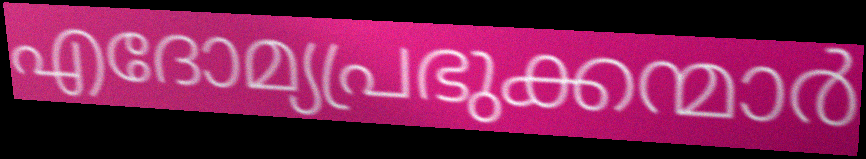
എദോമ്യപ്രഭുക്കന്മാർ